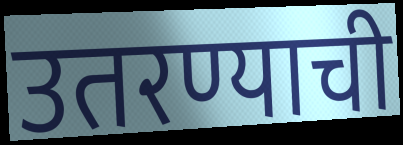
उतरण्याची